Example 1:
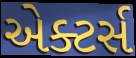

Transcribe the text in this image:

એક્ટર્સ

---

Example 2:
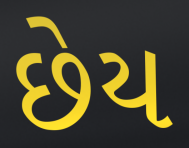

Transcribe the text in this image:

છેય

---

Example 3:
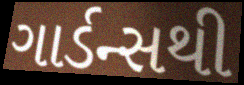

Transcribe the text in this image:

ગાર્ડન્સથી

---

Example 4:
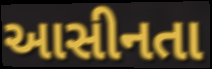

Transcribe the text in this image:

આસીનતા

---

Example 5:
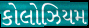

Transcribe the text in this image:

કોલોઝિયમ